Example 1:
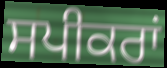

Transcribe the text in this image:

ਸਪੀਕਰਾਂ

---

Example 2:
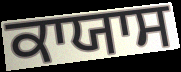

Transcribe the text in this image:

ਕਾਯਾਸ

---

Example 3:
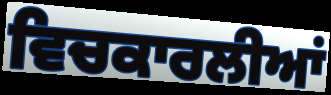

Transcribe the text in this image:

ਵਿਚਕਾਰਲੀਆਂ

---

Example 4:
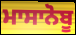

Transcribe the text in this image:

ਮਾਸਾਨੋਬੂ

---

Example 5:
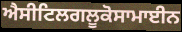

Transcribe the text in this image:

ਐਸੀਟਿਲਗਲੂਕੋਸਾਮਾਈਨ